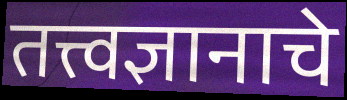
तत्त्वज्ञानाचे